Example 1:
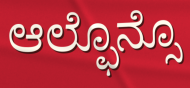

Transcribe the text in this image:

ಆಲ್ಫೊನ್ಸೊ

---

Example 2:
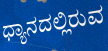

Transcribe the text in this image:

ಧ್ಯಾನದಲ್ಲಿರುವ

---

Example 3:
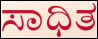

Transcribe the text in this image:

ಸಾಧಿತ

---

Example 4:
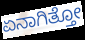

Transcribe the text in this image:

ಏನಾಗಿತ್ತೋ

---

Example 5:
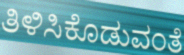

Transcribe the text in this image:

ತಿಳಿಸಿಕೊಡುವಂತೆ